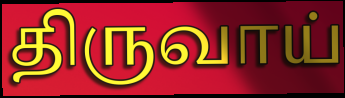
திருவாய்